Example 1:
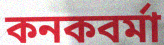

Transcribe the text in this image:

কনকবর্মা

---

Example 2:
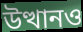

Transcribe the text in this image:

উত্থানও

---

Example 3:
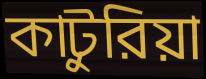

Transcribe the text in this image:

কাটুরিয়া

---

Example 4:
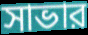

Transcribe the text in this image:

সাভার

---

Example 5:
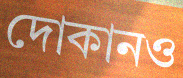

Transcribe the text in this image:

দোকানও